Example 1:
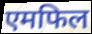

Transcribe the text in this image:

एमफिल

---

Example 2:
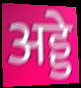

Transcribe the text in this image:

अड्डे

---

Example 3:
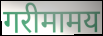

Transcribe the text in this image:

गरीमामय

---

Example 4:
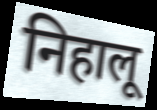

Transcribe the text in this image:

निहालू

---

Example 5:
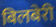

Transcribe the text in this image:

बिलबेरी